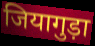
जियागुड़ा